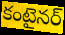
కంటైనర్